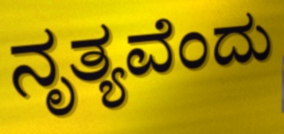
ನೃತ್ಯವೆಂದು